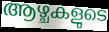
ആഴ്ചകളുടെ